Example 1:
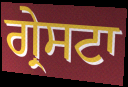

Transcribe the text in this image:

ਗ੍ਰੇਸਟਾ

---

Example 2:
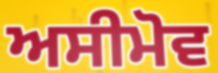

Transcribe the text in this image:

ਅਸੀਮੋਵ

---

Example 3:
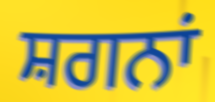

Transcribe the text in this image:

ਸ਼ਗਨਾਂ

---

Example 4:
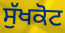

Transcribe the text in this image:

ਸੁੱਖਕੋਟ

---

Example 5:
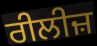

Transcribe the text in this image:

ਰੀਲੀਜ਼